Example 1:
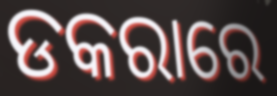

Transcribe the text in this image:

ଡକରାରେ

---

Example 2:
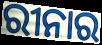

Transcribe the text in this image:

ରୀନାର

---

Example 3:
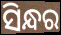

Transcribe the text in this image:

ସିନ୍ଧର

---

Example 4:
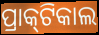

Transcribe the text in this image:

ପ୍ରାକ୍‌ଟିକାଲ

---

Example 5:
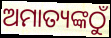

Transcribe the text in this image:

ଅମାତ୍ୟଙ୍କଠୁଁ